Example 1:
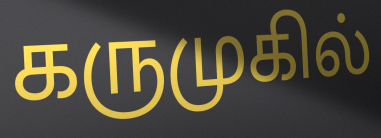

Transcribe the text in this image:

கருமுகில்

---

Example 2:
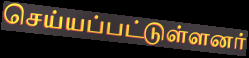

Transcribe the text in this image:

செய்யப்பட்டுள்ளனர்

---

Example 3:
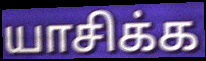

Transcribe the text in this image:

யாசிக்க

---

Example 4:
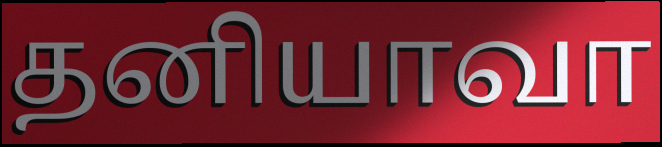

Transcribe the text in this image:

தனியாவா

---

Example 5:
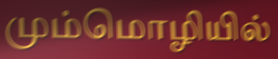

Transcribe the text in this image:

மும்மொழியில்